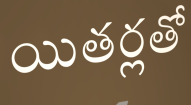
యితర్లతో